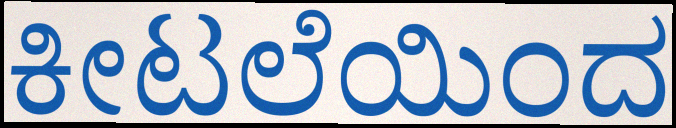
ಕೀಟಲೆಯಿಂದ